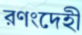
রণংদেহী